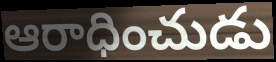
ఆరాధించుడు